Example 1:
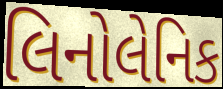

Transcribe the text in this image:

લિનોલેનિક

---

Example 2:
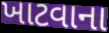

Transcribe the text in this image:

ખાટવાના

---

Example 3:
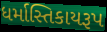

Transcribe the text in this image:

ધર્માસ્તિકાયરૂપ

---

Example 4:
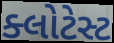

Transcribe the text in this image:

ક્લોટેસ્ટ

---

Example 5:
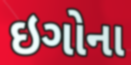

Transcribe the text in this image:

ઇગોના